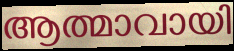
ആത്മാവായി